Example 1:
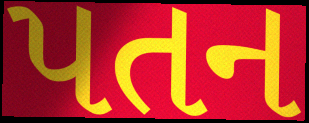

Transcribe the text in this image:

પતન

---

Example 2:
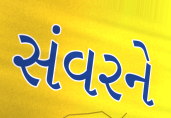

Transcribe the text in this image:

સંવરને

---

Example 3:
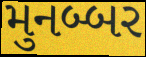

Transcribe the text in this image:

મુનબ્બર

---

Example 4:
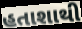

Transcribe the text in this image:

હતાશાથી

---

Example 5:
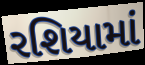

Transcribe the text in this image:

રશિયામાં